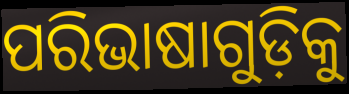
ପରିଭାଷାଗୁଡ଼ିକୁ